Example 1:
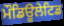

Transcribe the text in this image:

ਮੌਡਿਊਲੇਟਿਡ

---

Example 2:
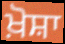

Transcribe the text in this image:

ਖ਼ੋਸ਼ਾ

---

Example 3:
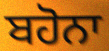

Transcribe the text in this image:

ਬਹੋਨਾ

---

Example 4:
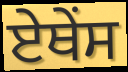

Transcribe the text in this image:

ਏਥੇਂਸ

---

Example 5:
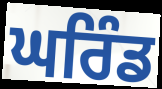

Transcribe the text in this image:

ਘਰਿੰਡ